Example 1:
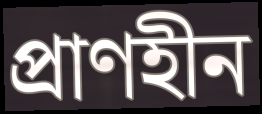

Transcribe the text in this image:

প্ৰাণহীন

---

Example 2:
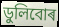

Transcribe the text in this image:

ডুলিবোৰ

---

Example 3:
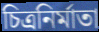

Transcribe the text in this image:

চিত্ৰনিৰ্মাতা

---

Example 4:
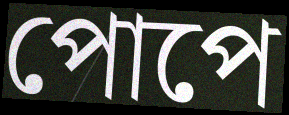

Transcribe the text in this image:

পোপে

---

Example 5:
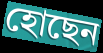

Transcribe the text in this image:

হোছেন